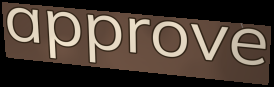
approve